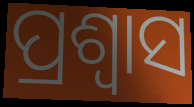
ପ୍ରଶ୍ଵାସ